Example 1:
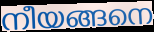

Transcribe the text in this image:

നീയങ്ങനെ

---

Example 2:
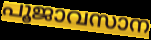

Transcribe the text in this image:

പൂജാവസാന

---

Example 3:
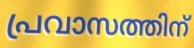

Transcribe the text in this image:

പ്രവാസത്തിന്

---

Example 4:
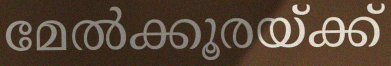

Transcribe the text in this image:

മേൽക്കൂരയ്ക്ക്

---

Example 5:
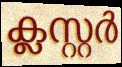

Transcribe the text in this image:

ക്ലസ്റ്റർ